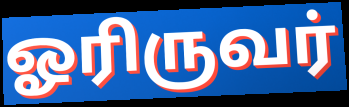
ஓரிருவர்